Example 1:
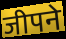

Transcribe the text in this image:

जीपने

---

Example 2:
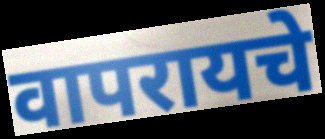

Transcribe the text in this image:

वापरायचे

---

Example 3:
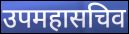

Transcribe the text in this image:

उपमहासचिव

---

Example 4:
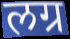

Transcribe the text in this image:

लग्र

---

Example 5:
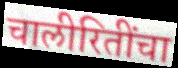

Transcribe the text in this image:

चालीरितींचा